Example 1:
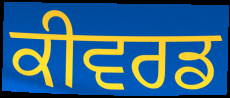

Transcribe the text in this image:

ਕੀਵਰਡ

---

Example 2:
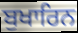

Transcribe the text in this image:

ਬੁਖਾਰਿਨ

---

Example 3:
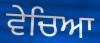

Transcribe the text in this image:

ਵੇਚਿਆ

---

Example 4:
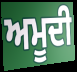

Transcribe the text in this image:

ਅਮੂਦੀ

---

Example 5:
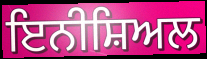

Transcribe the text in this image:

ਇਨੀਸ਼ਿਅਲ